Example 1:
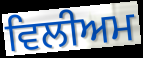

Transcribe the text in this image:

ਵਿਲੀਅਮ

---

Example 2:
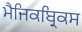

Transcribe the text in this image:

ਮੈਜਿਕਬ੍ਰਿਕਸ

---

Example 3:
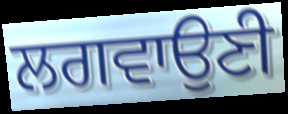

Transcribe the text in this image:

ਲਗਵਾਉਣੀ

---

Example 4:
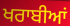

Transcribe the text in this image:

ਖਰਾਬੀਆਂ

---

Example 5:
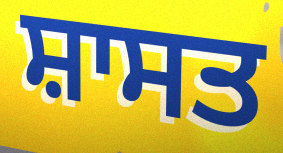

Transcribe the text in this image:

ਸ਼ਾਸਤ